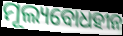
ମୂଲ୍ୟବୋଧହୀନ